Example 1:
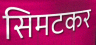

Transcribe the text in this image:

सिमटकर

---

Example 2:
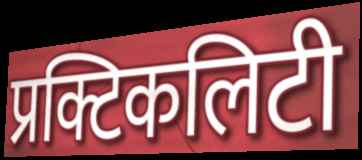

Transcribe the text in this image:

प्रक्टिकलिटी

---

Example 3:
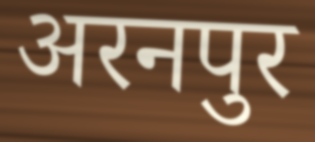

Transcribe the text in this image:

अरनपुर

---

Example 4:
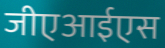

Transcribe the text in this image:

जीएआईएस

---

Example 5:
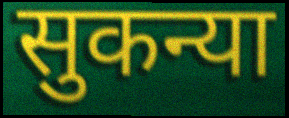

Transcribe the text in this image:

सुकन्या